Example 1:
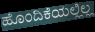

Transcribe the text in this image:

ಹೊಂದಿಕೆಯಲ್ಲಿಲ್ಲ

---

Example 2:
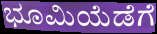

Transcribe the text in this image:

ಭೂಮಿಯೆಡೆಗೆ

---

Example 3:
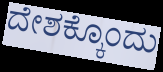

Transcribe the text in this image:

ದೇಶಕ್ಕೊಂದು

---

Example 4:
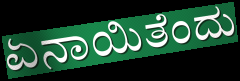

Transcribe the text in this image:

ಏನಾಯಿತೆಂದು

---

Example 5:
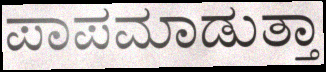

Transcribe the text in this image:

ಪಾಪಮಾಡುತ್ತಾ